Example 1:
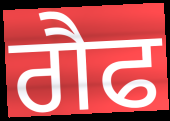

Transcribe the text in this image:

ਗੈਫ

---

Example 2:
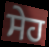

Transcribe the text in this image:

ਸੇਹ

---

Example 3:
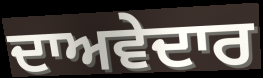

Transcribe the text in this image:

ਦਾਅਵੇਦਾਰ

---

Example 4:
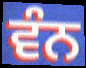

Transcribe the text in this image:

ਵੰਨ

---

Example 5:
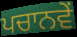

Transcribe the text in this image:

ਪਚਾਨਵੇਂ